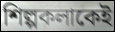
শিল্পকলাকেই